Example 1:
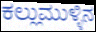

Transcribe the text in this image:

ಕಲ್ಲುಮುಳ್ಳಿನ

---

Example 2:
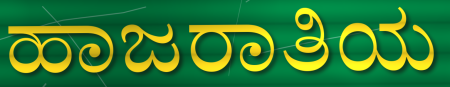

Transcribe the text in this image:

ಹಾಜರಾತಿಯ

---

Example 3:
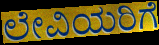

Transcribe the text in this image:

ಲೇವಿಯರಿಗೆ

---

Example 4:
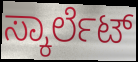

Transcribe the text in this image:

ಸ್ಕಾರ್ಲೆಟ್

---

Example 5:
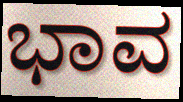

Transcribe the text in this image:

ಭಾವ